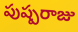
పుష్పరాజు